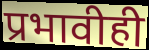
प्रभावीही